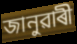
জানুৱাৰী